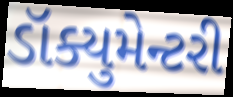
ડૉક્યુમેન્ટરી